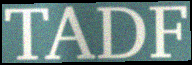
TADF